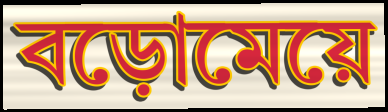
বড়োমেয়ে